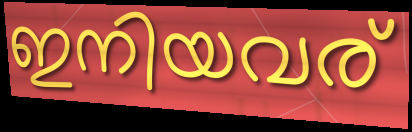
ഇനിയവര്